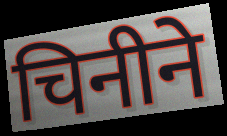
चिनीने